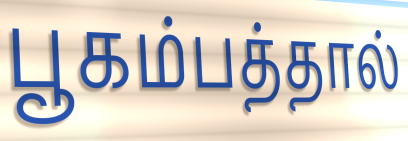
பூகம்பத்தால்